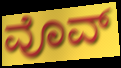
ವೊವ್